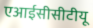
एआईसीसीटीयू